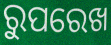
ରୁପରେଖ